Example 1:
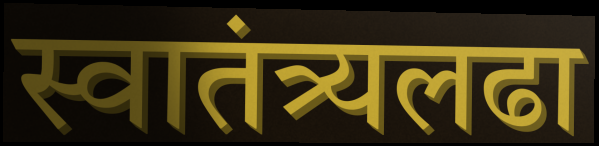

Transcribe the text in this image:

स्वातंत्र्यलढा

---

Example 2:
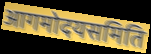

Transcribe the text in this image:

आगमोदयसमिति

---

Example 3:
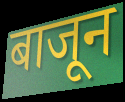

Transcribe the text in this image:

बाजून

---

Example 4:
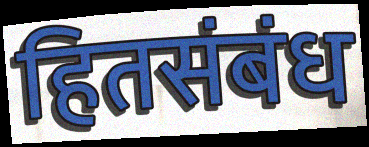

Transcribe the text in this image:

हितसंबंध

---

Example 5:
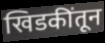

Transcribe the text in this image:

खिडकींतून